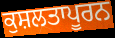
ਕੁਸ਼ਲਤਾਪੂਰਨ